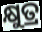
କ୍ଷୁତ୍ର